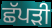
ਛੱਪੜੀ